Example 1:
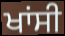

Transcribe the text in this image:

ਖਾਂਸੀ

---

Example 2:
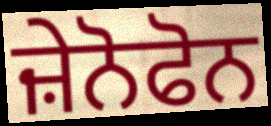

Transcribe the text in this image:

ਜ਼ੇਨੋਫੋਨ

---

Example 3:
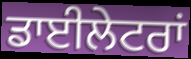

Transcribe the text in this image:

ਡਾਈਲੇਟਰਾਂ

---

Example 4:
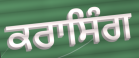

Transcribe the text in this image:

ਕਰਾਸਿੰਗ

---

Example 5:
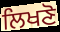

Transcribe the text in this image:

ਲਿਖਣੋ